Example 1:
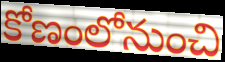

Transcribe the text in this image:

కోణంలోనుంచి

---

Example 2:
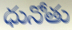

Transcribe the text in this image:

ధునోతు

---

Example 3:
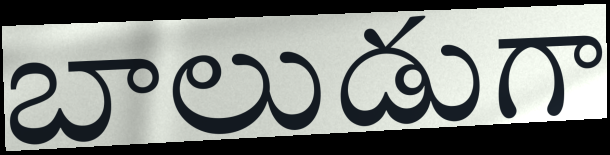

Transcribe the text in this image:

బాలుడుగా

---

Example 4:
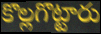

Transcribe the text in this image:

కొల్లగొట్టారు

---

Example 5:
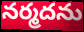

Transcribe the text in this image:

నర్మదను